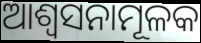
ଆଶ୍ୱସନାମୂଳକ